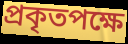
প্ৰকৃতপক্ষে